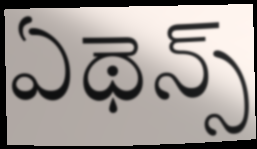
ఏథెన్స్